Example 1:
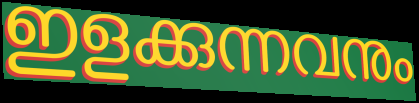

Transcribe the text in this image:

ഇളക്കുന്നവനും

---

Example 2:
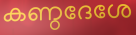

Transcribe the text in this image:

കണ്ഠദേശേ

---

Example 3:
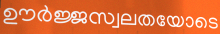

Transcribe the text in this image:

ഊർജ്ജസ്വലതയോടെ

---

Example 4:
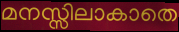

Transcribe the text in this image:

മനസ്സിലാകാതെ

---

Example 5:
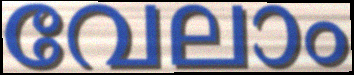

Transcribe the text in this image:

വേലാം